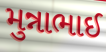
મુન્નાભાઈ